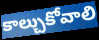
కాల్చుకోవాలి